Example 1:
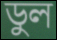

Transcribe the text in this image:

ডুল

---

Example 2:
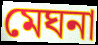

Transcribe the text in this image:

মেঘনা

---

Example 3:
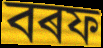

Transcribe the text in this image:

বৰফ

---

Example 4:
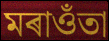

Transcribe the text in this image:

মৰাওঁতা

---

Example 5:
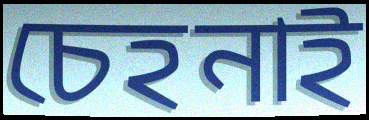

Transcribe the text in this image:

চেহনাই